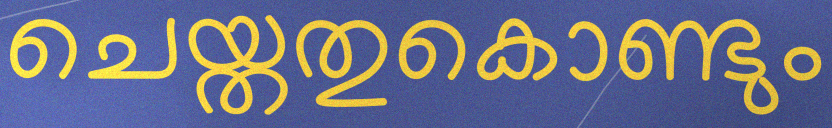
ചെയ്തതുകൊണ്ടും